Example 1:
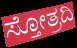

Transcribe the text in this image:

ಸ್ತೋತ್ರದಿ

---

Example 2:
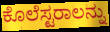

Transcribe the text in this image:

ಕೊಲೆಸ್ಟರಾಲನ್ನು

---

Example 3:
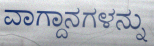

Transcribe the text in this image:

ವಾಗ್ದಾನಗಳನ್ನು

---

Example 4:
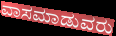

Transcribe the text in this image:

ವಾಸಮಾಡುವರು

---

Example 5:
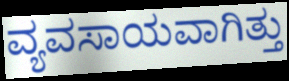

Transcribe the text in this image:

ವ್ಯವಸಾಯವಾಗಿತ್ತು